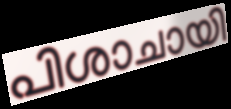
പിശാചായി